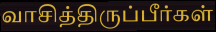
வாசித்திருப்பீர்கள்